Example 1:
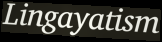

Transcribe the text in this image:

Lingayatism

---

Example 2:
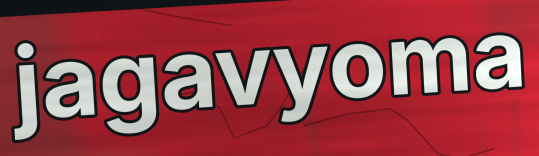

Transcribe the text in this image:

jagavyoma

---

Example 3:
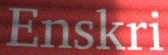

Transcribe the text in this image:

Enskri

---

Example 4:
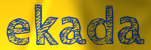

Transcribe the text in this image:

ekada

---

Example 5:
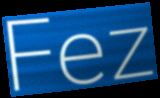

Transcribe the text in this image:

Fez